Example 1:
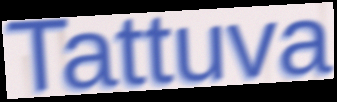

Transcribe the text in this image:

Tattuva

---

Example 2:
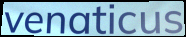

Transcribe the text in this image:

venaticus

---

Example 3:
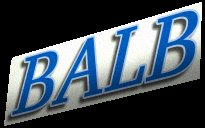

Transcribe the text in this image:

BALB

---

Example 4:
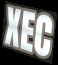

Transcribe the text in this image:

XEC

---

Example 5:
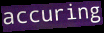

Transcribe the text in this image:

accuring